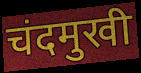
चंदमुखी